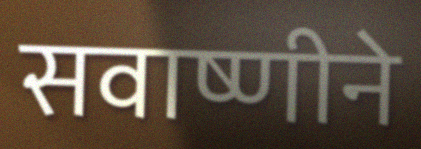
सवाष्णीने